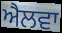
ਐਲਵਾ